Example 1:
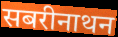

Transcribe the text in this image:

सबरीनाथन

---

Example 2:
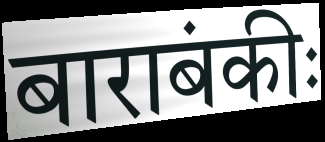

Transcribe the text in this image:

बाराबंकीः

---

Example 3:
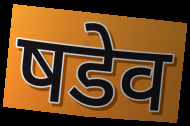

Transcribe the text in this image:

षडेव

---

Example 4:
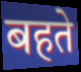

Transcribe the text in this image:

बहते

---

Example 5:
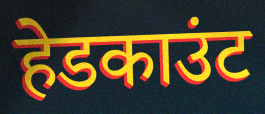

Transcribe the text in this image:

हेडकाउंट